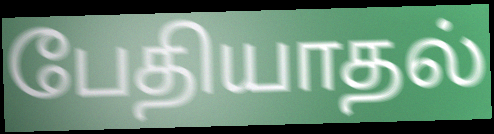
பேதியாதல்